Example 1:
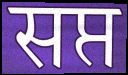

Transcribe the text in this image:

सप्त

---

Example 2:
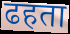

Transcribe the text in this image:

ढहता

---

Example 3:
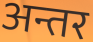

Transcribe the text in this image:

अन्‍तर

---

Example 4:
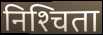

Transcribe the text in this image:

निश्चिता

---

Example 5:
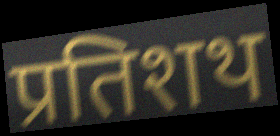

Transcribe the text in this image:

प्रतिशथ